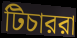
টিচাররা